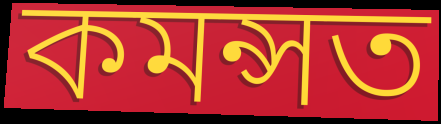
কমন্সত